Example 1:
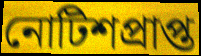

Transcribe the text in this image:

নোটিশপ্রাপ্ত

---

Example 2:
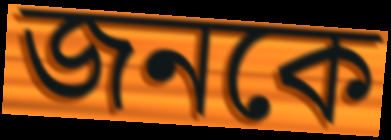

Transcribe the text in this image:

জনকে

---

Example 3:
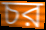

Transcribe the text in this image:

চর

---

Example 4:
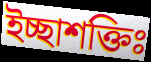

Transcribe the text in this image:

ইচ্ছাশক্তিঃ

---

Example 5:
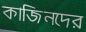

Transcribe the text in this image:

কাজিনদের